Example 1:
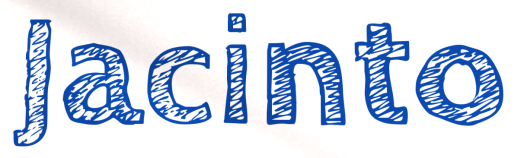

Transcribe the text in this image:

Jacinto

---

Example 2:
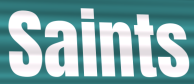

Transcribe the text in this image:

Saints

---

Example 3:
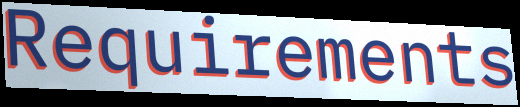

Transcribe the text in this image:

Requirements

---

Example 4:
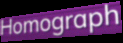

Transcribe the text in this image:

Homograph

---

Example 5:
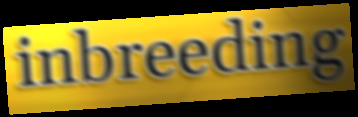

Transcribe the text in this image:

inbreeding